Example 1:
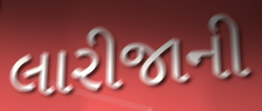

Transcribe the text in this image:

લારીજાની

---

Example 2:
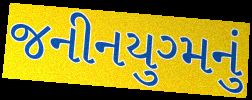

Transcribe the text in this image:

જનીનયુગ્મનું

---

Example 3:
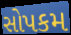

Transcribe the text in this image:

સોપકમ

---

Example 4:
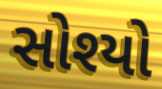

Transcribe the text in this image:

સોશ્યો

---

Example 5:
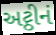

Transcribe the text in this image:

અટ્ઠીનં